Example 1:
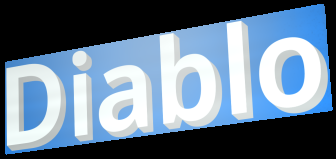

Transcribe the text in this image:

Diablo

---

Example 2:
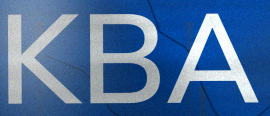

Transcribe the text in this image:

KBA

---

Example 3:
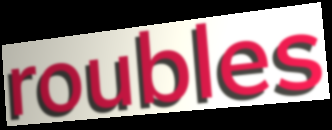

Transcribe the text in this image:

roubles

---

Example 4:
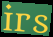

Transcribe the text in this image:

irs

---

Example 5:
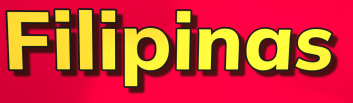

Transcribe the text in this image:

Filipinas